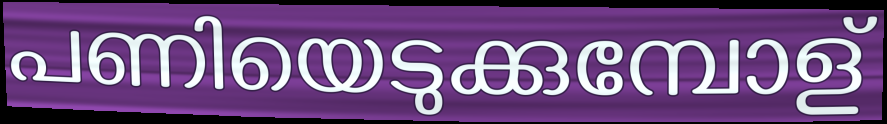
പണിയെടുക്കുമ്പോള്